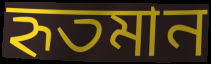
হৃতমান